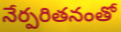
నేర్పరితనంతో